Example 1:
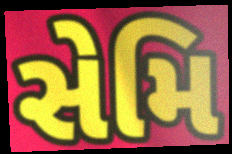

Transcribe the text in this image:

સેમિ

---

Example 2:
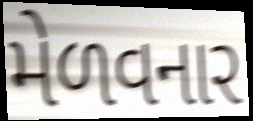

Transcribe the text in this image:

મેળવનાર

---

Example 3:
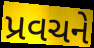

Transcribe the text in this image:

પ્રવચને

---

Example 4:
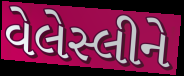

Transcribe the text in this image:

વેલેસ્લીને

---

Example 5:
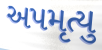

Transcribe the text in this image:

અપમૃત્યુ